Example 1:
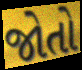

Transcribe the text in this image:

જોતો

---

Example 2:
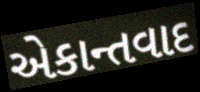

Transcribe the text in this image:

એકાન્તવાદ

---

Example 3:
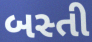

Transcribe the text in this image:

બસ્તી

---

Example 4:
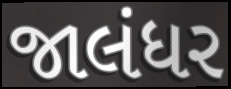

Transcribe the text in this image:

જાલંધર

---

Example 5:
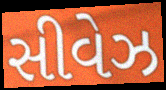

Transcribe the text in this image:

સીવેઝ